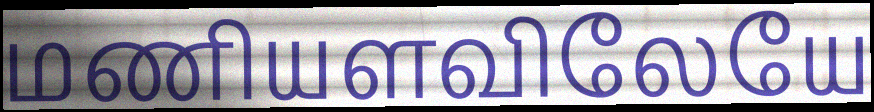
மணியளவிலேயே